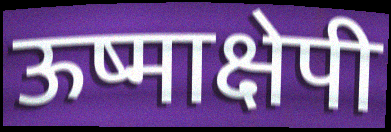
ऊष्माक्षेपी